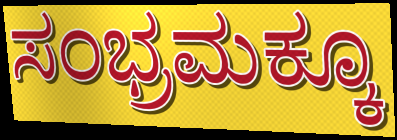
ಸಂಭ್ರಮಕ್ಕೂ